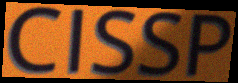
CISSP